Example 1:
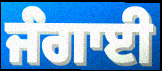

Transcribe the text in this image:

ਜੰਗਾਈ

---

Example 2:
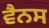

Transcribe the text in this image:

ਵੈਨਸ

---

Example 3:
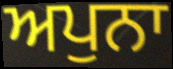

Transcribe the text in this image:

ਅਪੁਨਾ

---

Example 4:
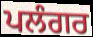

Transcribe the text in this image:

ਪਲੰਗਰ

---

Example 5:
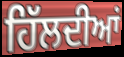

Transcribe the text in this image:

ਹਿੱਲਦੀਆਂ